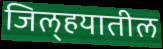
जिल्हयातील